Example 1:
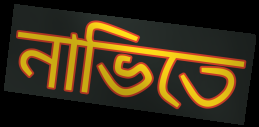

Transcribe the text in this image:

নাভিতে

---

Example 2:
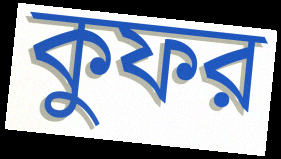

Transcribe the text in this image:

কুফর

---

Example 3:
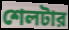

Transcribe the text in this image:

শেলটার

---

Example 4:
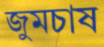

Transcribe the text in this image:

জুমচাষ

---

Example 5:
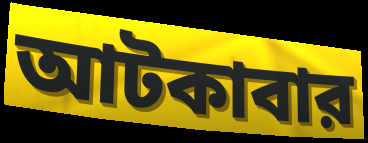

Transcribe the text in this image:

আটকাবার